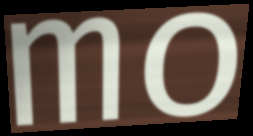
mo